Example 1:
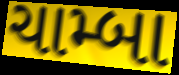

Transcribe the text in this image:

ચામ્બા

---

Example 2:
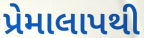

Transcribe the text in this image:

પ્રેમાલાપથી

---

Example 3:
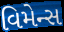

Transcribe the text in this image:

વિમેન્સ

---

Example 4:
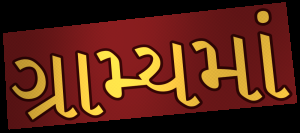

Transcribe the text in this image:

ગ્રામ્યમાં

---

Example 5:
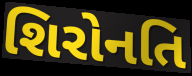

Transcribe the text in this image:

શિરોનતિ